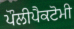
ਪੌਲੀਪੈਕਟੋਮੀ